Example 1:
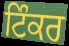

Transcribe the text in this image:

ਟਿੰਕਰ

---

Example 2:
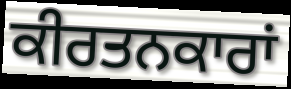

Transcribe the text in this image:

ਕੀਰਤਨਕਾਰਾਂ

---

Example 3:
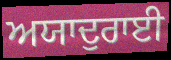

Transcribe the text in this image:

ਅਯਾਦੁਰਾਈ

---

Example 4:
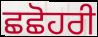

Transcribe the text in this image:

ਛਛੋਹਰੀ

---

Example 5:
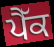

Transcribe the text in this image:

ਪੈੱਕ